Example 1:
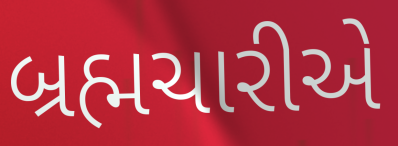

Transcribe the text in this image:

બ્રહ્મચારીએ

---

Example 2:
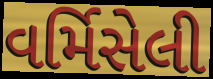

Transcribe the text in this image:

વર્મિસેલી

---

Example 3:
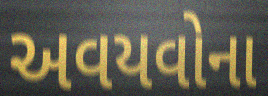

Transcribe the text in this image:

અવયવોના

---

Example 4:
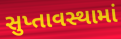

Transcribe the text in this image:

સુપ્તાવસ્થામાં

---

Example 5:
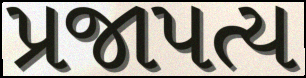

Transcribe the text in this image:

પ્રજાપત્ય